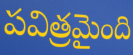
పవిత్రమైంది